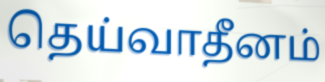
தெய்வாதீனம்